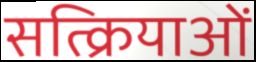
सत्क्रियाओं